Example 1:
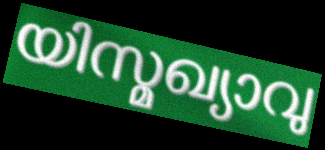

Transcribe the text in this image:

യിസ്മഖ്യാവു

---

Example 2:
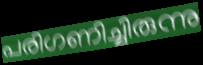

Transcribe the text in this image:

പരിഗണിച്ചിരുന്നു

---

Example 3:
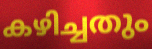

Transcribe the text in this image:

കഴിച്ചതും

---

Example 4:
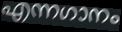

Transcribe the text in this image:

എന്നഗാനം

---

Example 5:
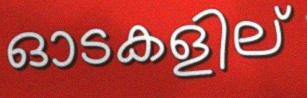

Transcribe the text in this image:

ഓടകളില്